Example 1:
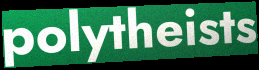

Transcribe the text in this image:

polytheists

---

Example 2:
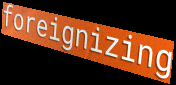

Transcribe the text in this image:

foreignizing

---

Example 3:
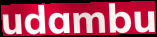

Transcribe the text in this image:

udambu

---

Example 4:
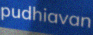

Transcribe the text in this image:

pudhiavan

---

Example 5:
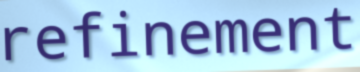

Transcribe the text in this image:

refinement